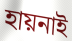
হায়নাই